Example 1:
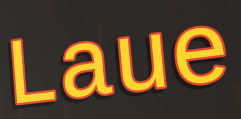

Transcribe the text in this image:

Laue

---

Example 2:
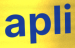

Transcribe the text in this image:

apli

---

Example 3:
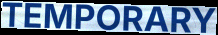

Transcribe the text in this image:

TEMPORARY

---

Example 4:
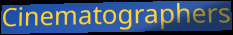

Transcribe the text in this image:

Cinematographers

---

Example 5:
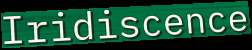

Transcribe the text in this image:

Iridiscence